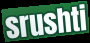
srushti